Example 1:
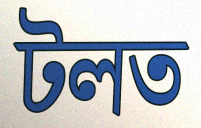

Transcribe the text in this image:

টলত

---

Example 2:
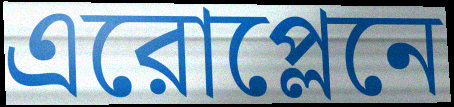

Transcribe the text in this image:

এরোপ্লেনে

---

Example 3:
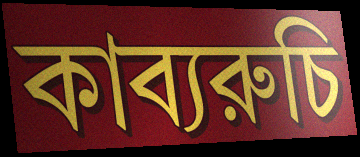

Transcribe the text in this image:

কাব্যরুচি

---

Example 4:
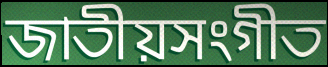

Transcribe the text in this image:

জাতীয়সংগীত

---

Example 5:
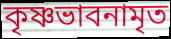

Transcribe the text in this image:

কৃষ্ণভাবনামৃত